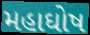
મહાઘોષ